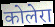
कोलेरा